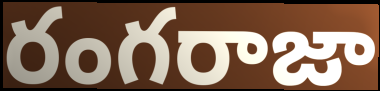
రంగరాజా